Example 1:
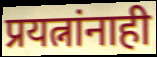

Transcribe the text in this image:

प्रयत्नांनाही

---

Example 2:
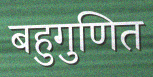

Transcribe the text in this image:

बहुगुणित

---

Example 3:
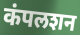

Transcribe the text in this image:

कंपलशन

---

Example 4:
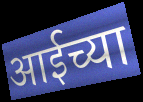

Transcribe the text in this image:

आईच्या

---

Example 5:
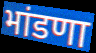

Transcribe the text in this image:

भांडणा